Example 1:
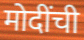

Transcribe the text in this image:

मोदींची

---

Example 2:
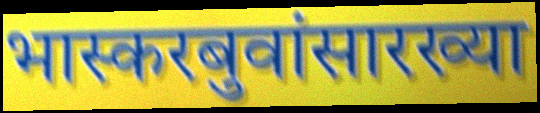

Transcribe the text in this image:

भास्करबुवांसारख्या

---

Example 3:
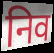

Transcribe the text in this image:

निव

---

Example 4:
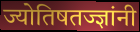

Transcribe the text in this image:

ज्योतिषतज्ज्ञांनी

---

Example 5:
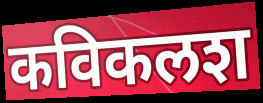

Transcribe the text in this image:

कविकलश